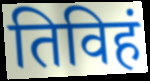
तिविहं